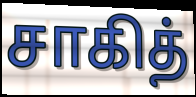
சாகித்